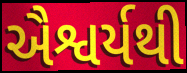
ઐશ્વર્યથી